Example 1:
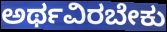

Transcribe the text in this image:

ಅರ್ಥವಿರಬೇಕು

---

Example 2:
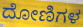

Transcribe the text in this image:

ದೋಣಿಗಳ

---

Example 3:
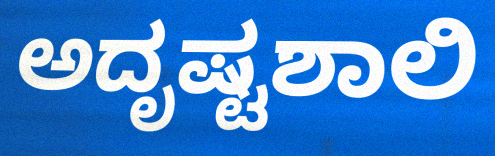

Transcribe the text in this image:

ಅದೃಷ್ಟಶಾಲಿ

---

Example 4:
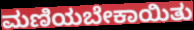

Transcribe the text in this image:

ಮಣಿಯಬೇಕಾಯಿತು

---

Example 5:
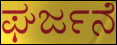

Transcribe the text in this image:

ಘರ್ಜನೆ